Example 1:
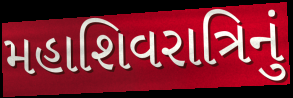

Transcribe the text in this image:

મહાશિવરાત્રિનું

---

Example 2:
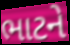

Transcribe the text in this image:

ભાટને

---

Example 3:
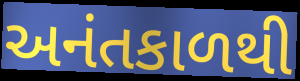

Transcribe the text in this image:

અનંતકાળથી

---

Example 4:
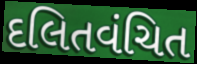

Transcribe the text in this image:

દલિતવંચિત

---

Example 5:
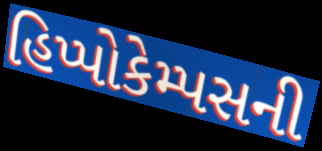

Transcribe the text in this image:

હિપ્પોકેમ્પસની